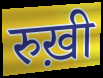
रुख़ी